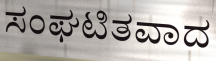
ಸಂಘಟಿತವಾದ